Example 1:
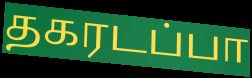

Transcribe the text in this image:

தகரடப்பா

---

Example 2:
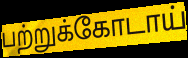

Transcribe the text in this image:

பற்றுக்கோடாய்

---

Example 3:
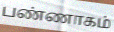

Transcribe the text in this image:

பண்ணாகம்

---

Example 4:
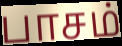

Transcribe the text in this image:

பாசம்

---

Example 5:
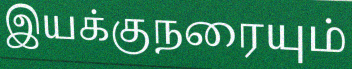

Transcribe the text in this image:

இயக்குநரையும்